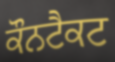
ਕੌਨਟੈਕਟ